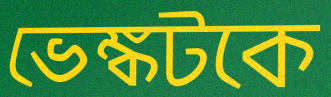
ভেঙ্কটকে